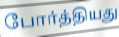
போர்த்தியது